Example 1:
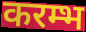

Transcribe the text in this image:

करम्भ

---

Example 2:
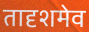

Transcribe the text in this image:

तादृशमेव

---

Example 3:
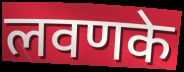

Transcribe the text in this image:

लवणके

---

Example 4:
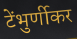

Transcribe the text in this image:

टेंभुर्णीकर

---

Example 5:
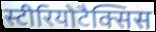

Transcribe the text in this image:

स्टीरियोटैक्सिस